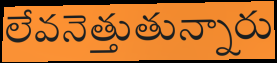
లేవనెత్తుతున్నారు